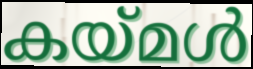
കയ്മൾ